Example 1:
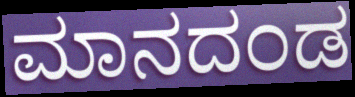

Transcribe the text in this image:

ಮಾನದಂಡ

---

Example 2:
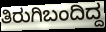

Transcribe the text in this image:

ತಿರುಗಿಬಂದಿದ್ದ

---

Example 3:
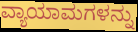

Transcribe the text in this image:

ವ್ಯಾಯಾಮಗಳನ್ನು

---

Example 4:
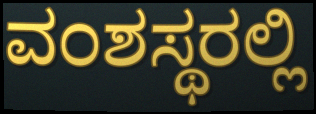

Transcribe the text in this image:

ವಂಶಸ್ಥರಲ್ಲಿ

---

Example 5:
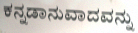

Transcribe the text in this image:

ಕನ್ನಡಾನುವಾದವನ್ನು